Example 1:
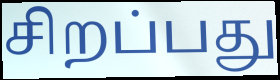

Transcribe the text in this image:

சிறப்பது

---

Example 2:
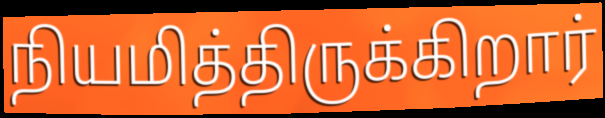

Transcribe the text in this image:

நியமித்திருக்கிறார்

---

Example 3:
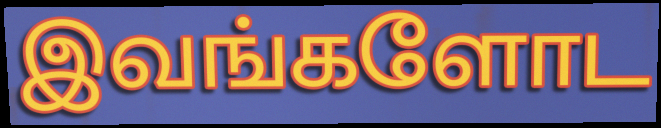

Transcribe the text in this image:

இவங்களோட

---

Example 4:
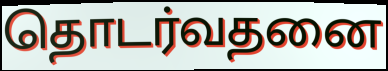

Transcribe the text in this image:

தொடர்வதனை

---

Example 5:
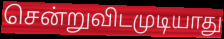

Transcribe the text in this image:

சென்றுவிடமுடியாது